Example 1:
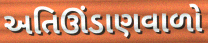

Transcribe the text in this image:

અતિઊંડાણવાળો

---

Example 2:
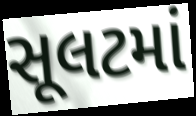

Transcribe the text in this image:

સૂલટમાં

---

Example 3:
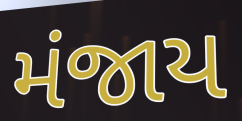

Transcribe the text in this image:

મંજાય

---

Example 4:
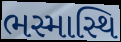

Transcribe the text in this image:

ભસ્માસ્થિ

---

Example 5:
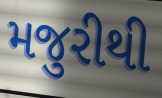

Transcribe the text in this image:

મજુરીથી